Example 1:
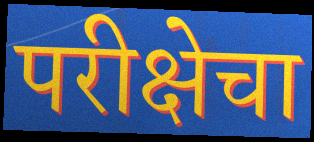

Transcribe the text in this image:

परीक्षेचा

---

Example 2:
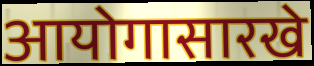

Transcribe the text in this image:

आयोगासारखे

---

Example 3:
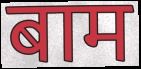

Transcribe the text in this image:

बाम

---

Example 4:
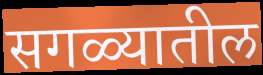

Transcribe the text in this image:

सगळ्यातील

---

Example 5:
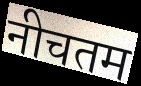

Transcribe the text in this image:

नीचतम